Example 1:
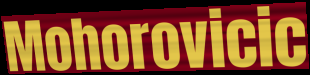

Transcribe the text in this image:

Mohorovicic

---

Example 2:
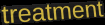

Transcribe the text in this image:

treatment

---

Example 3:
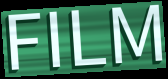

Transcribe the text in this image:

FILM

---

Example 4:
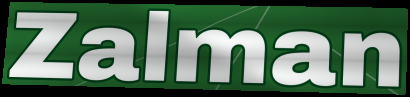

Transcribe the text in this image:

Zalman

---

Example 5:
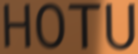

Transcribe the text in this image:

HOTU